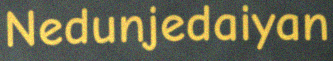
Nedunjedaiyan